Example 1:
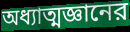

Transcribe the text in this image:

অধ্যাত্মজ্ঞানের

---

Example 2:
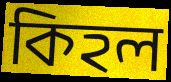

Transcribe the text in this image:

কিহল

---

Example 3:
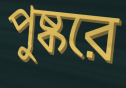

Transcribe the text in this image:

পুষ্করে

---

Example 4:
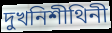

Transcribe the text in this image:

দুখনিশীথিনী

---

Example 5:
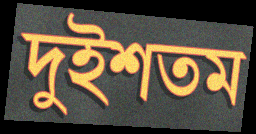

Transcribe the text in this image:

দুইশতম